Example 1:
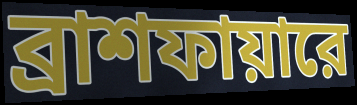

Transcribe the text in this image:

ব্রাশফায়ারে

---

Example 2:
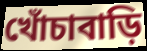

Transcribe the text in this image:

খোঁচাবাড়ি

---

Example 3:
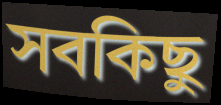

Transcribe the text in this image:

সবকিছু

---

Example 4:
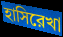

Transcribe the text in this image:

হাসিরেখা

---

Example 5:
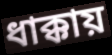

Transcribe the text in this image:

ধাক্কায়